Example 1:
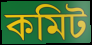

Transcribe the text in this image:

কমিট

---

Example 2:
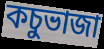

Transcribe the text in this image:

কচুভাজা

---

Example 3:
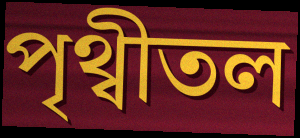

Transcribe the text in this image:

পৃথ্বীতল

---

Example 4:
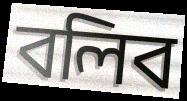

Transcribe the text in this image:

বলিব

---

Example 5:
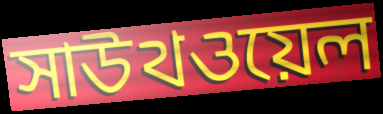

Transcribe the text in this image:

সাউথওয়েল